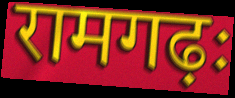
रामगढ़ः